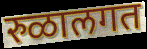
रुळालगत